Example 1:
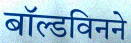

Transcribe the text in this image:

बॉल्डविनने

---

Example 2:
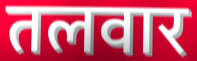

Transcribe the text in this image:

तलवार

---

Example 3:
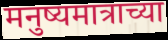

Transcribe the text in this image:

मनुष्यमात्राच्या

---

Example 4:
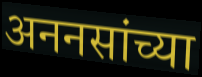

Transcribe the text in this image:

अननसांच्या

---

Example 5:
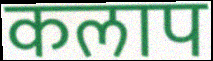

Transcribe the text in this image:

कलाप